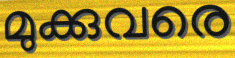
മുക്കുവരെ